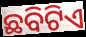
ଛବିଟିଏ